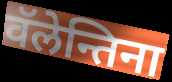
वॅलेन्तिना